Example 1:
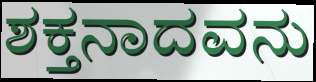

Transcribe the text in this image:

ಶಕ್ತನಾದವನು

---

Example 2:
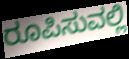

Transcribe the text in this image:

ರೂಪಿಸುವಲ್ಲಿ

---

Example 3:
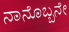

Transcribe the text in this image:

ನಾನೊಬ್ಬನೇ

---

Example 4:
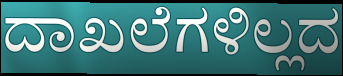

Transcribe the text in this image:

ದಾಖಲೆಗಳಿಲ್ಲದ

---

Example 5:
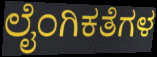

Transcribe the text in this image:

ಲೈಂಗಿಕತೆಗಳ